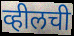
व्हीलची